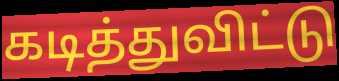
கடித்துவிட்டு